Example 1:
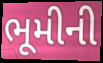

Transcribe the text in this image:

ભૂમીની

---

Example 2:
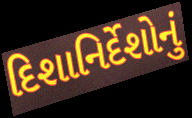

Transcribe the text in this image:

દિશાનિર્દેશોનું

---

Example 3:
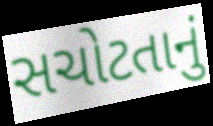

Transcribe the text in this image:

સચોટતાનું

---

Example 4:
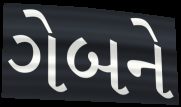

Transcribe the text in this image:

ગેબને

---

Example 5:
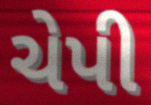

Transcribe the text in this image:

ચેપી